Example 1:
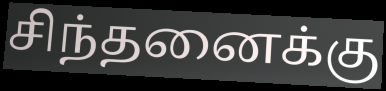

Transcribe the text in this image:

சிந்தனைக்கு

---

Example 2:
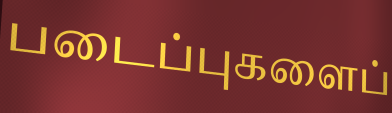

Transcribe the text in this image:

படைப்புகளைப்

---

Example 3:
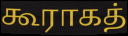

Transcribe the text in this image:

கூராகத்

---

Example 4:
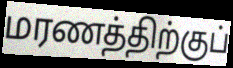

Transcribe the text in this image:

மரணத்திற்குப்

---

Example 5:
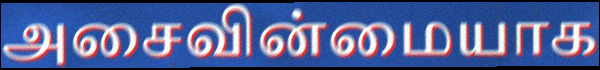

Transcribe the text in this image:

அசைவின்மையாக